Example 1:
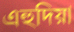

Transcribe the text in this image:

এহুদিয়া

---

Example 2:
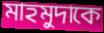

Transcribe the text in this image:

মাহমুদাকে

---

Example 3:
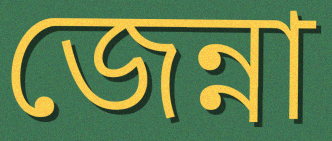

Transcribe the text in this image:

জেন্না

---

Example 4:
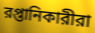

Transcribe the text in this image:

রপ্তানিকারীরা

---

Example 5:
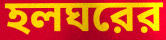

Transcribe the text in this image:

হলঘরের